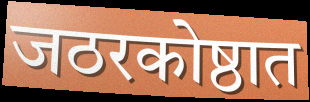
जठरकोष्ठात